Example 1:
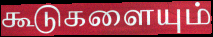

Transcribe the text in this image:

கூடுகளையும்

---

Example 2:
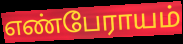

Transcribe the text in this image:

எண்பேராயம்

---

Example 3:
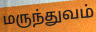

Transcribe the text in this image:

மருந்துவம்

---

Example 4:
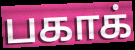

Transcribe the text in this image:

பகாக்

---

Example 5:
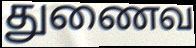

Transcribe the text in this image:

துணைவ